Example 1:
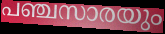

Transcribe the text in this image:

പഞ്ചസാരയും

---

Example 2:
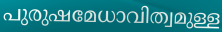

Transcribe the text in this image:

പുരുഷമേധാവിത്വമുള്ള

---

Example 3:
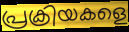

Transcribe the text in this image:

പ്രക്രിയകളെ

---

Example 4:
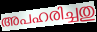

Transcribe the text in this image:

അപഹരിച്ചതു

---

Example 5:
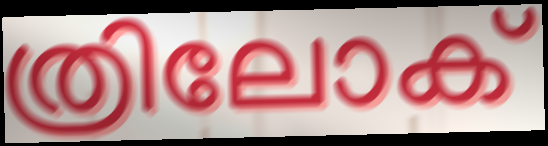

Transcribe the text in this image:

ത്രിലോക്